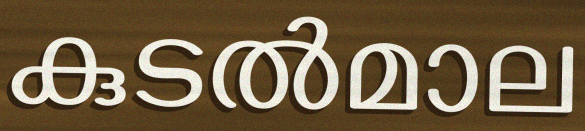
കുടൽമാല